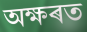
অক্ষৰত